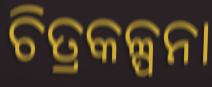
ଚିତ୍ରକଳ୍ପନା